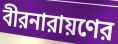
বীরনারায়ণের